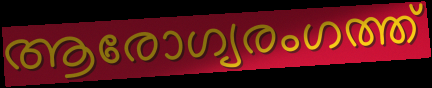
ആരോഗ്യരംഗത്ത്